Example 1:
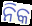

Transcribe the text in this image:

ନିକ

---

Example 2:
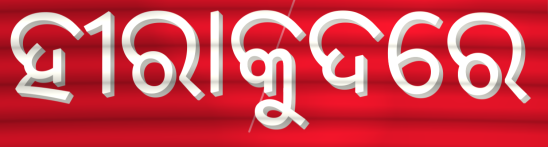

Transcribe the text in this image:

ହୀରାକୁଦରେ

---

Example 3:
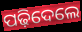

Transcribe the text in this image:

ପଢ଼ିଦେଲେ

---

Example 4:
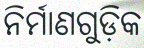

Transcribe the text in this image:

ନିର୍ମାଣଗୁଡ଼ିକ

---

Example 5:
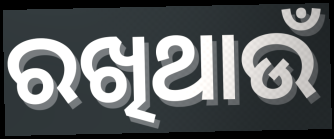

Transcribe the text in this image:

ରଖିଥାଉଁ